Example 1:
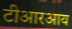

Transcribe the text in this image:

टीआरआय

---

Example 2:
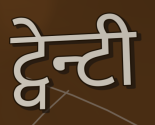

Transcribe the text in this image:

ट्वेन्टी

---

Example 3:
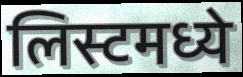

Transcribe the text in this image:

लिस्टमध्ये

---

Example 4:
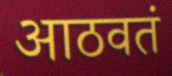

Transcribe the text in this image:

आठवतं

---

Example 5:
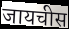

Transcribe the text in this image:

जायचीस